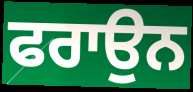
ਫਰਾਉਨ